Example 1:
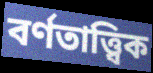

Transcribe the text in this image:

বৰ্ণতাত্ত্বিক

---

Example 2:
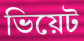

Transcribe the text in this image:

ভিয়েট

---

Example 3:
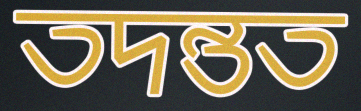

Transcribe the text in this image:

তদন্তত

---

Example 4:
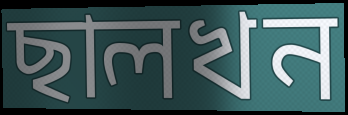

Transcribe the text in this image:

ছালখন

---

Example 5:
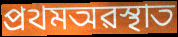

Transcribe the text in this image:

প্ৰথমঅৱস্থাত